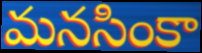
మనసింకా